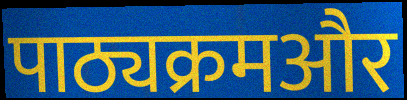
पाठ्यक्रमऔर